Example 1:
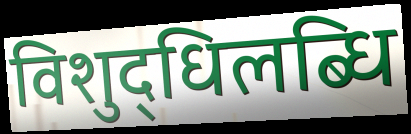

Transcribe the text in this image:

विशुद्धिलब्धि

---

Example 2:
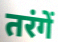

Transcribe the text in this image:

तरंगें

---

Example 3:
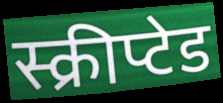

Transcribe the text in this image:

स्क्रीप्टेड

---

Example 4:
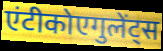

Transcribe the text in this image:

एंटीकोएगुलेंट्स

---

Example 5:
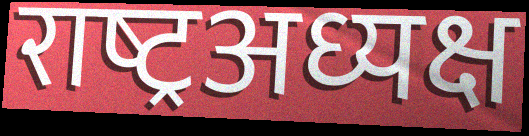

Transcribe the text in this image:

राष्ट्रअध्यक्ष